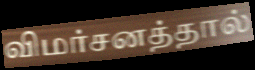
விமர்சனத்தால்